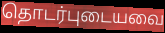
தொடர்புடையவை